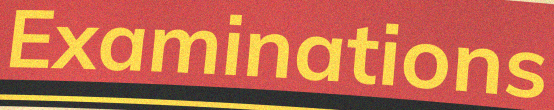
Examinations